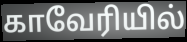
காவேரியில்